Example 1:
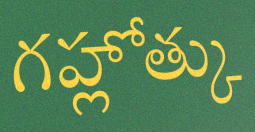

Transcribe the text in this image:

గహ్లోత్కు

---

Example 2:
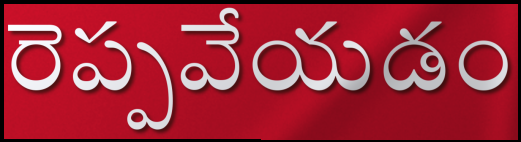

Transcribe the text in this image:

రెప్పవేయడం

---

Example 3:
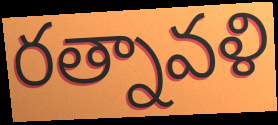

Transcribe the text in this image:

రత్నావళి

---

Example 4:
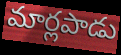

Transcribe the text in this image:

మార్లపాడు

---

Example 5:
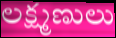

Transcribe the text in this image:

లక్ష్మణులు